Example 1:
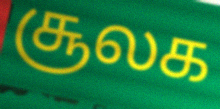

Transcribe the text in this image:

சூலக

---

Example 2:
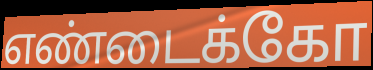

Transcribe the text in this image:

எண்டைக்கோ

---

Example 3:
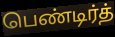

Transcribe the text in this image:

பெண்டிர்த்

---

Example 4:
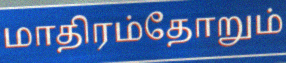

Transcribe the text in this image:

மாதிரம்தோறும்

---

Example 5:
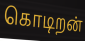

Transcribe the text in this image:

கொடிறன்